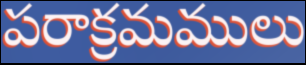
పరాక్రమములు